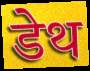
डेथ